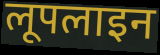
लूपलाइन